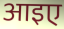
आइए